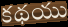
కథయు